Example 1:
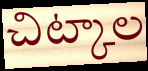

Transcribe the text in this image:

చిట్కాల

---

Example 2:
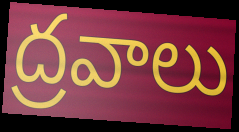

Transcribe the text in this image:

ద్రవాలు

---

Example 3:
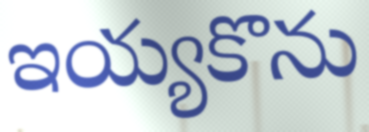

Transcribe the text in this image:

ఇయ్యకొను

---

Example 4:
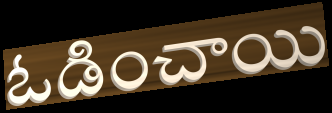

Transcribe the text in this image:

ఓడించాయి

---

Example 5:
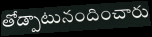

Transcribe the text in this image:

తోడ్పాటునందించారు